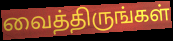
வைத்திருங்கள்